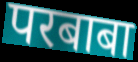
परबाबा